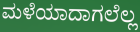
ಮಳೆಯಾದಾಗಲೆಲ್ಲ